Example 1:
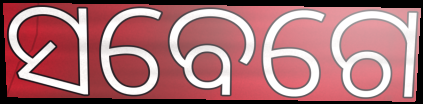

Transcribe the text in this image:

ସବେଗେ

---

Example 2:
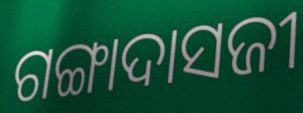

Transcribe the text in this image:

ଗଙ୍ଗାଦାସଜୀ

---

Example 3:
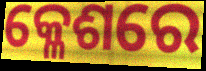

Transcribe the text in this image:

କ୍ଳେଶରେ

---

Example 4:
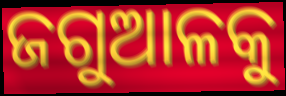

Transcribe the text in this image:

ଜଗୁଆଳକୁ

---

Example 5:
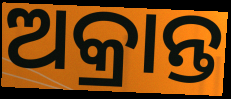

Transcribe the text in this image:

ଅକ୍ରାନ୍ତ